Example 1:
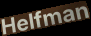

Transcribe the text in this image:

Helfman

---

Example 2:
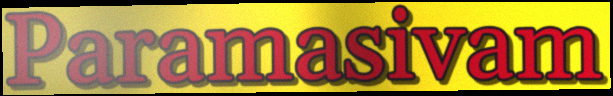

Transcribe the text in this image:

Paramasivam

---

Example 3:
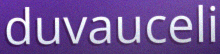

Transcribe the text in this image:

duvauceli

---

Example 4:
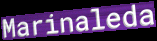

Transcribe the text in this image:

Marinaleda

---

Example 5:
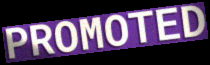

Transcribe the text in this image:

PROMOTED